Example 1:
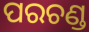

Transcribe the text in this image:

ପରଚଣ୍ଡ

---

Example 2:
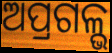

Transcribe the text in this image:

ଅପ୍ରଗଳ୍ଭ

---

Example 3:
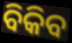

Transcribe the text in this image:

ବିକିବ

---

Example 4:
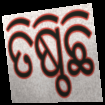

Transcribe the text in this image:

ତିଷ୍ଠିଛି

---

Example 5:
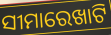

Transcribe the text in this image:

ସୀମାରେଖାଟି